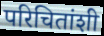
परिचितांशी